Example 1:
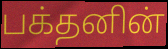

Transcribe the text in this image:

பக்தனின்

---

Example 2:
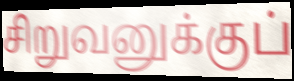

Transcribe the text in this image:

சிறுவனுக்குப்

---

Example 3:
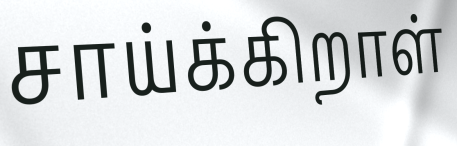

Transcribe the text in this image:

சாய்க்கிறாள்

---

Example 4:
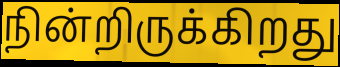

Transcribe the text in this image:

நின்றிருக்கிறது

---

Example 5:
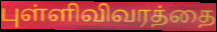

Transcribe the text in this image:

புள்ளிவிவரத்தை